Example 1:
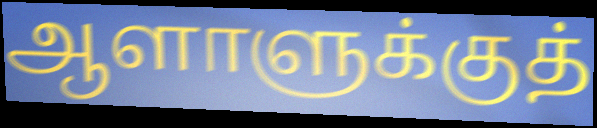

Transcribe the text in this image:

ஆளாளுக்குத்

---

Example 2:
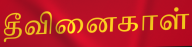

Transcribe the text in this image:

தீவினைகாள்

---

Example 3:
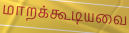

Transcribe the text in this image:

மாறக்கூடியவை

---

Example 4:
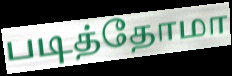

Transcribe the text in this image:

படித்தோமா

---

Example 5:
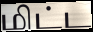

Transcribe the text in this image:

மிட்ட